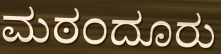
ಮಠಂದೂರು